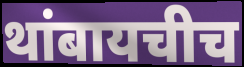
थांबायचीच